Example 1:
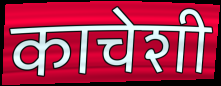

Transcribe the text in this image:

काचेशी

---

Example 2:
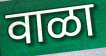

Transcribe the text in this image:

वाळा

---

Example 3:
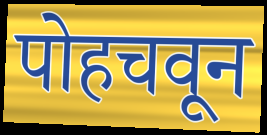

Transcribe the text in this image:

पोहचवून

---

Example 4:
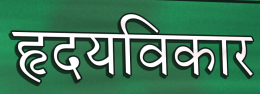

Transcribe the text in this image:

हृदयविकार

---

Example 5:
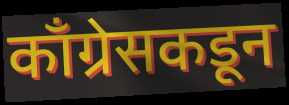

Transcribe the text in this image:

काँग्रेसकडून